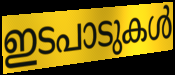
ഇടപാടുകൾ